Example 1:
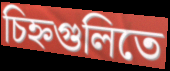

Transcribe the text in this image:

চিহ্নগুলিতে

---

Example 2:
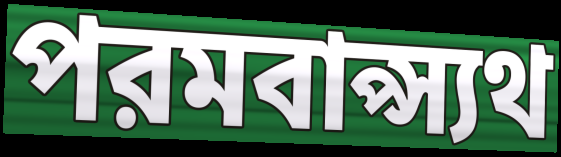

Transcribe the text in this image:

পরমবাপ্স্যথ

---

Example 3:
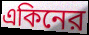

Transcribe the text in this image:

একিনের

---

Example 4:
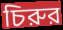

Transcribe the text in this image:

চিরুর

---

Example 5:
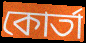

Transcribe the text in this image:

কোর্তা